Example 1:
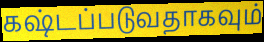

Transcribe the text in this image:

கஷ்டப்படுவதாகவும்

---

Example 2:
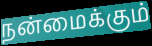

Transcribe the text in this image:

நன்மைக்கும்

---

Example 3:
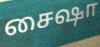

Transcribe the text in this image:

சைஷா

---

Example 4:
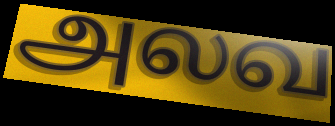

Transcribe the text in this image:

அலவ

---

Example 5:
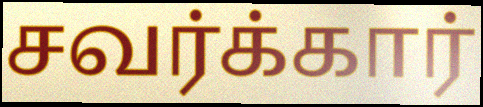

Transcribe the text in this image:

சவர்க்கார்